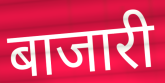
बाजारी